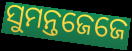
ସୁମନ୍ତଜେଜେ